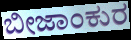
ಬೀಜಾಂಕುರ